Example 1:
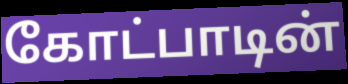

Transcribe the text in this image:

கோட்பாடின்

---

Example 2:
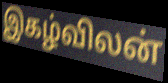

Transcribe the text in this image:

இகழ்விலன்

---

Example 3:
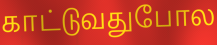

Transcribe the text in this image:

காட்டுவதுபோல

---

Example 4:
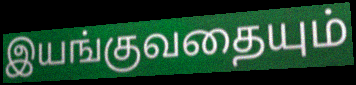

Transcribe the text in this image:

இயங்குவதையும்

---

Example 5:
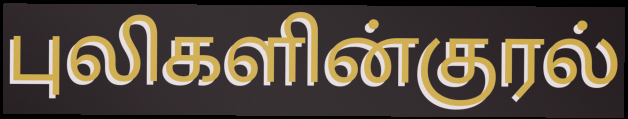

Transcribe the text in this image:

புலிகளின்குரல்